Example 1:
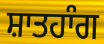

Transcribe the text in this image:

ਸ਼ਾਤਹਾੰਗ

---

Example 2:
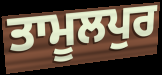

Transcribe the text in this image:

ਤਾਮੂਲਪੁਰ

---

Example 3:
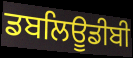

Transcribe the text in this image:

ਡਬਲਿਊਡੀਬੀ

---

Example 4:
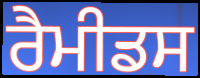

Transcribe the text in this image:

ਰੈਮੀਡਸ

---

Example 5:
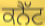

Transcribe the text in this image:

ਕਨੈੱਟ